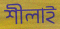
শীলাই